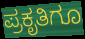
ಪ್ರಕೃತಿಗೂ